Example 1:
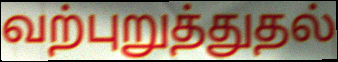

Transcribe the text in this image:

வற்புறுத்துதல்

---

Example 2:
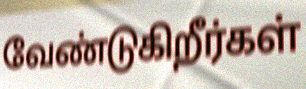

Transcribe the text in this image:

வேண்டுகிறீர்கள்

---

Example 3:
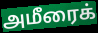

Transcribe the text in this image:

அமீரைக்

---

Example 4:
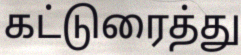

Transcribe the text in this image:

கட்டுரைத்து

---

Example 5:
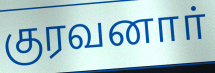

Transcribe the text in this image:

குரவனார்